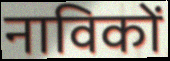
नाविकों